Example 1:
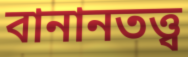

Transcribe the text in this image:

বানানতত্ত্ব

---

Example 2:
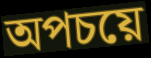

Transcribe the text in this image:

অপচয়ে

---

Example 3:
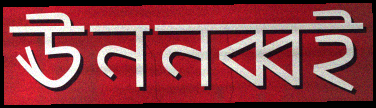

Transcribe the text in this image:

ঊননব্বই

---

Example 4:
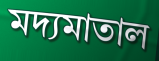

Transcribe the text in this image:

মদ্যমাতাল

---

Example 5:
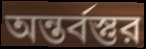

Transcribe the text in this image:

অন্তর্বস্তুর